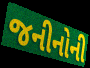
જનીનોની